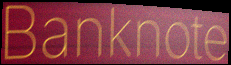
Banknote